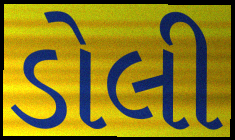
ડોલી